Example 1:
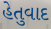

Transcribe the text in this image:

હેતુવાદ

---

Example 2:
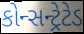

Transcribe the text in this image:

કોન્સન્ટ્રેટેડ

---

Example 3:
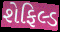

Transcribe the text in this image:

શેફિલ્ડ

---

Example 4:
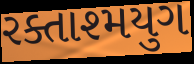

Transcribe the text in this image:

રક્તાશ્મયુગ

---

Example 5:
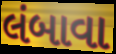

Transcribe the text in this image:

લંબાવા